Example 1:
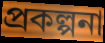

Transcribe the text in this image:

প্রকল্পনা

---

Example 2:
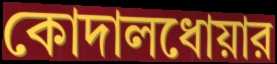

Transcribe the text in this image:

কোদালধোয়ার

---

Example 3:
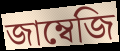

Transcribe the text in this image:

জাম্বেজি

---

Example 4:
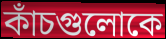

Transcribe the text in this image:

কাঁচগুলোকে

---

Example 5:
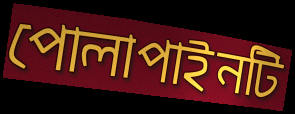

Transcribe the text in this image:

পোলাপাইনটি